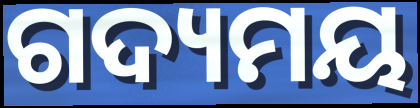
ଗଦ୍ୟମୟ